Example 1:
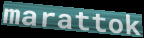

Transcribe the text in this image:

marattok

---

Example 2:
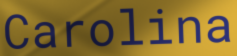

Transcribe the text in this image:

Carolina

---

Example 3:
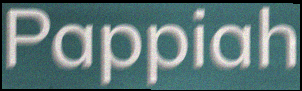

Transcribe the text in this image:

Pappiah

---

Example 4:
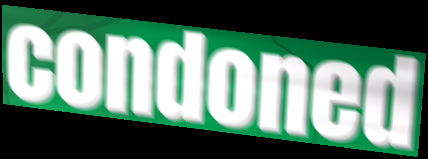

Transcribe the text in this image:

condoned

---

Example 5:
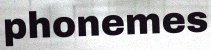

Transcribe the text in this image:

phonemes